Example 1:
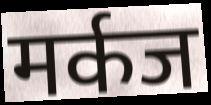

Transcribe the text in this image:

मर्कज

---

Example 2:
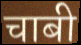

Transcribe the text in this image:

चाबी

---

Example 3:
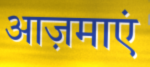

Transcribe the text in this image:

आज़माएं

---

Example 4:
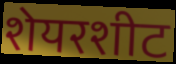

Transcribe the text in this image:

शेयरशीट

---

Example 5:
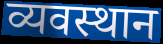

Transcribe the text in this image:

व्यवस्थान